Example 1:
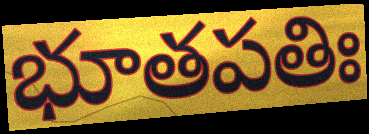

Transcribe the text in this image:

భూతపతిః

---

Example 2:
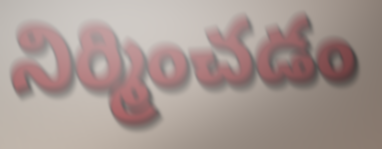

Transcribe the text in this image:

నిర్మించడం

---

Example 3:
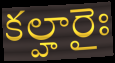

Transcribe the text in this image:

కల్హారైః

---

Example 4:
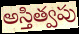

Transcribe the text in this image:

అస్తిత్వపు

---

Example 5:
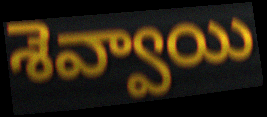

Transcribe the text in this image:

శెవ్వాయి